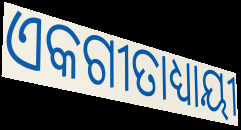
ଏକଗୀତାଧ୍ୟାୟୀ